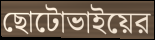
ছোটোভাইয়ের